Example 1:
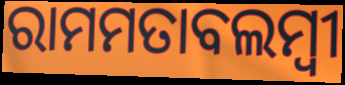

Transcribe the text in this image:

ରାମମତାବଲମ୍ବୀ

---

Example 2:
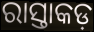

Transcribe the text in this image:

ରାସ୍ତାକଡ଼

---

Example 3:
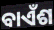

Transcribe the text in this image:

ବାଏଁଶ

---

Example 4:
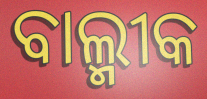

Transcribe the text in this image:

ବାଲ୍ମୀକ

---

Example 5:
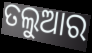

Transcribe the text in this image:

ତଲୁଆର